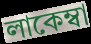
লাকেম্বা